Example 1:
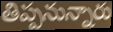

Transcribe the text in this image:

తిప్పనున్నారు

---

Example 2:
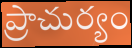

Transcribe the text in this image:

ప్రాచుర్యం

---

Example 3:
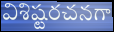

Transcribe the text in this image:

విశిష్టరచనగా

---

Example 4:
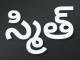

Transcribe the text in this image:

స్మిత్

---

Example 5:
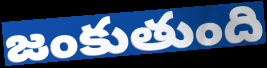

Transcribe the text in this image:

జంకుతుంది